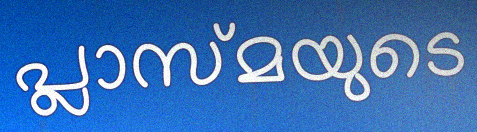
പ്ലാസ്മയുടെ